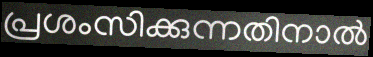
പ്രശംസിക്കുന്നതിനാൽ